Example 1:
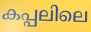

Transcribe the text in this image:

കപ്പലിലെ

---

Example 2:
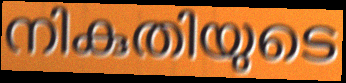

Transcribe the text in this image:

നികുതിയുടെ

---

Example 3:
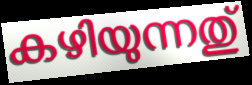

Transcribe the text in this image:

കഴിയുന്നതു്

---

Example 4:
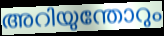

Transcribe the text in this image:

അറിയുന്തോറും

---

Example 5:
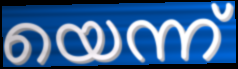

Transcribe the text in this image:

യെന്ന്